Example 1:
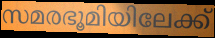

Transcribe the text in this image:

സമരഭൂമിയിലേക്ക്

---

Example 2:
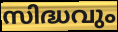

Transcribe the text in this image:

സിദ്ധവും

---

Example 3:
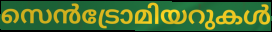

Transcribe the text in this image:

സെൻട്രോമിയറുകൾ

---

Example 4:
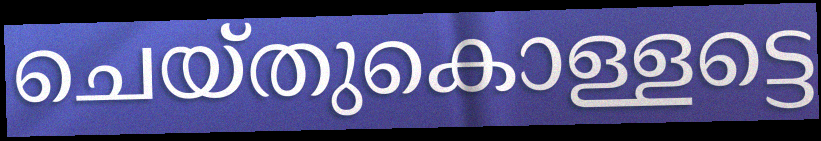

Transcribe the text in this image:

ചെയ്തുകൊള്ളട്ടെ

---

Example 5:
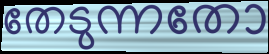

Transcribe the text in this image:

തേടുന്നതോ